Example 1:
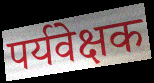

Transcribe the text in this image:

पर्यवेक्षक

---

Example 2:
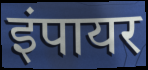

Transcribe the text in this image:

इंपायर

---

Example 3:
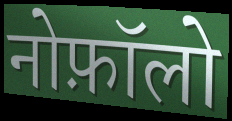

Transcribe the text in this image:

नोफ़ॉलो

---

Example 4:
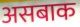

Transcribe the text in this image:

असबाक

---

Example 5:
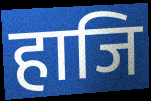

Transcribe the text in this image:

हाजि